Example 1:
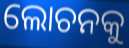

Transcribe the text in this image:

ଲୋଚନକୁ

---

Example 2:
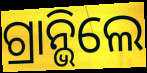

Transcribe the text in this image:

ଗ୍ରାନ୍ଭିଲେ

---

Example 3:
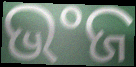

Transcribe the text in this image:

ଭଂଜ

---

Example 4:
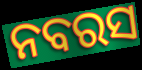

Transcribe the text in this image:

ନବରସ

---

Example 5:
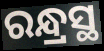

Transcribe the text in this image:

ରନ୍ଧ୍ରସ୍ଥ